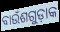
ବାଉଁଶଗୁଡ଼ାକ